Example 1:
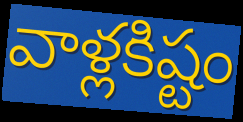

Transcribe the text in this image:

వాళ్లకిష్టం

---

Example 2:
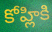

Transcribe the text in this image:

కోహ్లికి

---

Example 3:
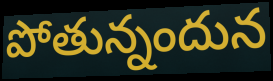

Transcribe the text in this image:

పోతున్నందున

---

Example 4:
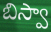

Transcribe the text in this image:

బిస్వా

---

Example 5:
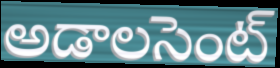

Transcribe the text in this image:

అడాలసెంట్